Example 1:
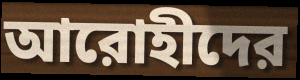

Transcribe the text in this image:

আরোহীদের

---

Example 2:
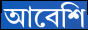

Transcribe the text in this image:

আবেশি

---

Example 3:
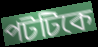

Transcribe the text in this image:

পটটিকে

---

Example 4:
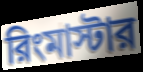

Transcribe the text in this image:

রিংমাস্টার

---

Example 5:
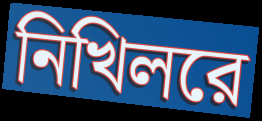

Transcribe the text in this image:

নিখিলরে